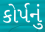
કોર્પનું